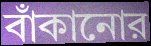
বাঁকানোর